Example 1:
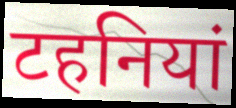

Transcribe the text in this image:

टहनियां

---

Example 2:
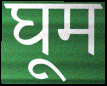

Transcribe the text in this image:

घूम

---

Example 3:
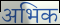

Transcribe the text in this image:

अभिक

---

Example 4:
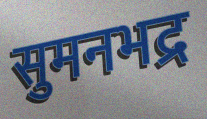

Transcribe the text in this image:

सुमनभद्र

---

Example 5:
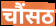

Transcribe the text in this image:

चौंसठ